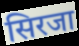
सिरजा